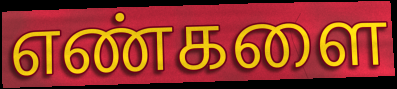
எண்களை